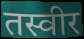
तस्वीर